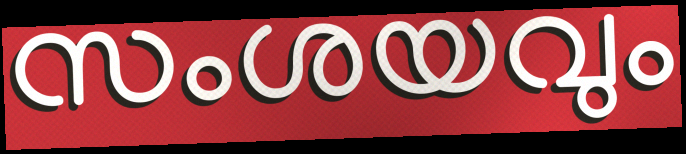
സംശയവും